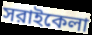
সরাইকেলা